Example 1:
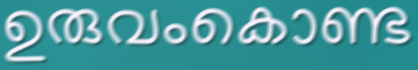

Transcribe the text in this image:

ഉരുവംകൊണ്ട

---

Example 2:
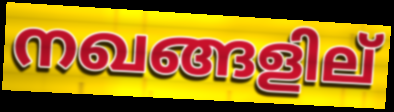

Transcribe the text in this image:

നഖങ്ങളില്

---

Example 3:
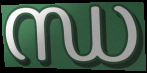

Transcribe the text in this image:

ന്ധ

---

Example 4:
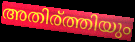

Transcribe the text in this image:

അതിര്ത്തിയും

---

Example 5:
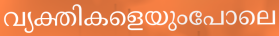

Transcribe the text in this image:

വ്യക്തികളെയുംപോലെ